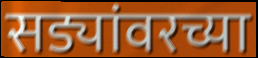
सड्यांवरच्या